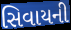
સિવાયની